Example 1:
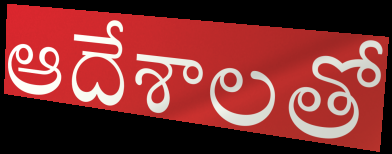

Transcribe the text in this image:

ఆదేశాలతో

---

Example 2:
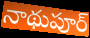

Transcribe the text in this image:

నాథుపూర్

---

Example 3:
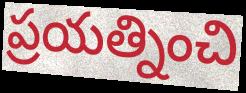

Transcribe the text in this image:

ప్రయత్నించి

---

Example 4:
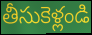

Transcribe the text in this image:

తీసుకెళ్లండి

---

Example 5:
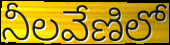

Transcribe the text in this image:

నీలవేణిలో